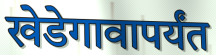
खेडेगावापर्यंत